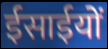
ईसाईयों